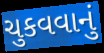
ચુકવવાનું